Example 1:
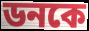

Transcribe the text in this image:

ডনকে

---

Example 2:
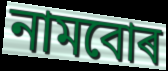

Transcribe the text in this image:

নামবোৰ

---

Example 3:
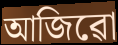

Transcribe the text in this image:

আজিৱো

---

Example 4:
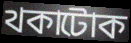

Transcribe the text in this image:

থকাটোক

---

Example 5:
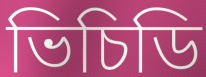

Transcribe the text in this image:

ভিচিডি